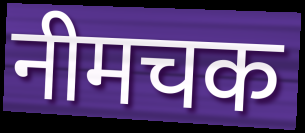
नीमचक